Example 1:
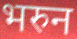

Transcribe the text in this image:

भरुन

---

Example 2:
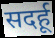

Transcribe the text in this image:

सदर्हू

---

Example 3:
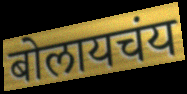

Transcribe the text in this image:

बोलायचंय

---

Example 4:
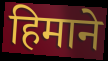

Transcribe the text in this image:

हिमाने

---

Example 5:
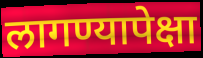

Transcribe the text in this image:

लागण्यापेक्षा